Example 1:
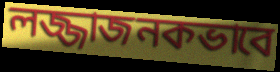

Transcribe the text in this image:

লজ্জাজনকভাবে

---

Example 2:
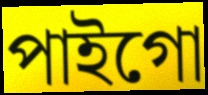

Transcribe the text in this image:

পাইগো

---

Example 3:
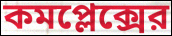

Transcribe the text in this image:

কমপ্লেক্সের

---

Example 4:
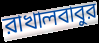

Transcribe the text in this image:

রাখালবাবুর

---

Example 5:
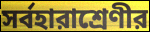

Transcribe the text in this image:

সর্বহারাশ্রেণীর